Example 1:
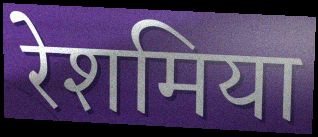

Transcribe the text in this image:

रेशमिया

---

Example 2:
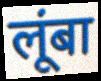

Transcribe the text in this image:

लूंबा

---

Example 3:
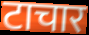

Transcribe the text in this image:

टाचार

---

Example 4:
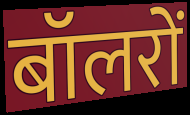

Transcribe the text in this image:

बॉलरों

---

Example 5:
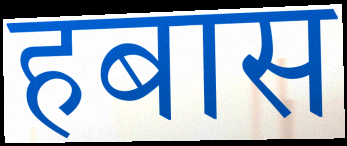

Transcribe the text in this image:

हबास